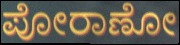
ಪೋರಾಣೋ